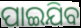
ପାଇଯିବ